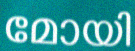
മോയി